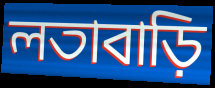
লতাবাড়ি